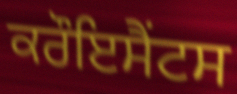
ਕਰੌਇਸੈਂਟਸ